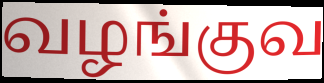
வழங்குவ